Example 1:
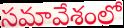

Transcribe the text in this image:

సమావేశంలో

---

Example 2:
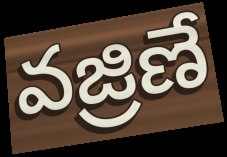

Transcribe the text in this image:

వజ్రిణే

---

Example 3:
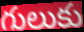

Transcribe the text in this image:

గులుకు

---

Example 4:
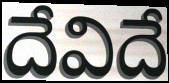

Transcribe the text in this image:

దేవిదే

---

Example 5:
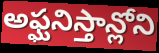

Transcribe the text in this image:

అఫ్ఘనిస్తాన్లోని